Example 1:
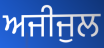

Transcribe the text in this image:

ਅਜੀਜੁਲ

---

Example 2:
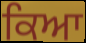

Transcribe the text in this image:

ਕਿਆ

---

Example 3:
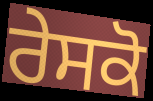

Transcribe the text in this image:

ਰੇਸਕੋ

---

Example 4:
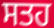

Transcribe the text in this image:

ਸਤਹ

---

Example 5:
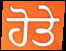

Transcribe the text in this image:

ਹੋਤੇ